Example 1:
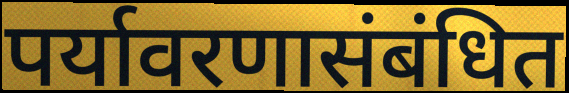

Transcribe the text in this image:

पर्यावरणासंबंधित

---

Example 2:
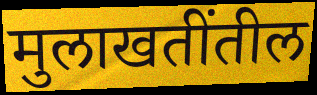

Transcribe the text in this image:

मुलाखतींतील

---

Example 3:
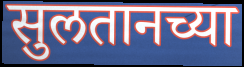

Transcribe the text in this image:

सुलतानच्या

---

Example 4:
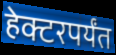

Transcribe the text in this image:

हेक्टरपर्यंत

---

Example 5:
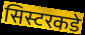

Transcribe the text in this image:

सिस्टरकडे